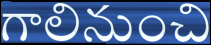
గాలినుంచి